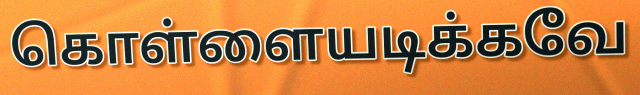
கொள்ளையடிக்கவே